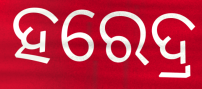
ହରେଦ୍ର